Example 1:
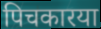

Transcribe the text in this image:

पिचकारया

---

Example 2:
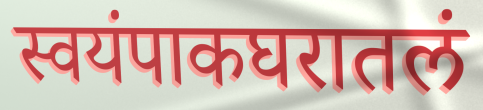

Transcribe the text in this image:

स्वयंपाकघरातलं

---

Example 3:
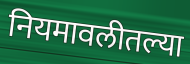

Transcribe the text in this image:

नियमावलीतल्या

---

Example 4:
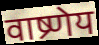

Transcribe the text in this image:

वाष्र्णेय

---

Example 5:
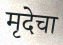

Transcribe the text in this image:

मृदेचा